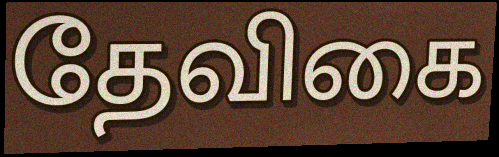
தேவிகை